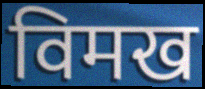
विमख